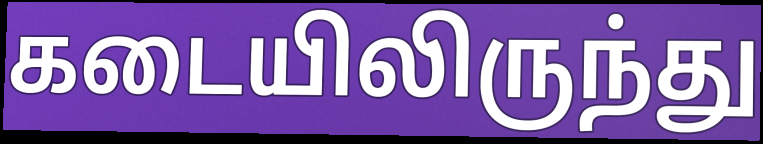
கடையிலிருந்து